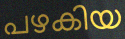
പഴകിയ